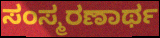
ಸಂಸ್ಮರಣಾರ್ಥ